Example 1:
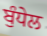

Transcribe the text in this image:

ਬੁੰਧੇਲ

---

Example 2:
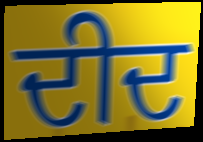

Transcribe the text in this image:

ਦੀਦ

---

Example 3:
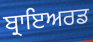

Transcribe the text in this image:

ਬ੍ਰਾਇਅਰਡ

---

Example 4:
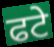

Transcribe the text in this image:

ਫਟੇ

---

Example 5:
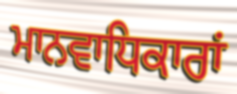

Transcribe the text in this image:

ਮਾਨਵਾਧਿਕਾਰਾਂ